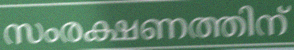
സംരക്ഷണത്തിന്